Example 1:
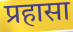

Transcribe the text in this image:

प्रहासा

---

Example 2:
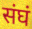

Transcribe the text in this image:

संघं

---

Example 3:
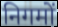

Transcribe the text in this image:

निगमों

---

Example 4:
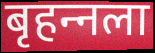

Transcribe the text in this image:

बृहन्नला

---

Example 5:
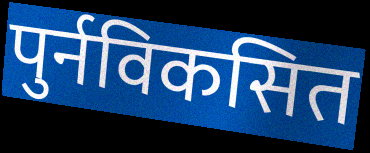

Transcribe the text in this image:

पुर्नविकसित